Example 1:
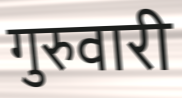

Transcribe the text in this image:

गुरुवारी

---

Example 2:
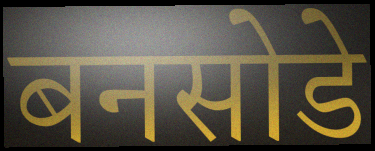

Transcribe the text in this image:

बनसोडे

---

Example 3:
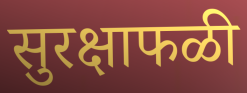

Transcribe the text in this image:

सुरक्षाफळी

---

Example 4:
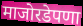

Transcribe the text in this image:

माजोरडेपणा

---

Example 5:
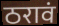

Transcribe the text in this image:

ठरावं